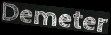
Demeter